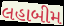
લહાબીમ